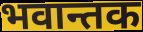
भवान्तक